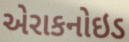
એરાકનોઇડ